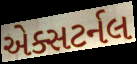
એક્સટર્નલ